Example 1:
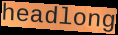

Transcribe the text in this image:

headlong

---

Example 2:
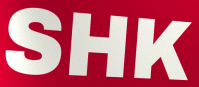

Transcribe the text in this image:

SHK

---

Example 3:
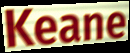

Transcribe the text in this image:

Keane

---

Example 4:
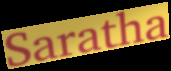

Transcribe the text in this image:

Saratha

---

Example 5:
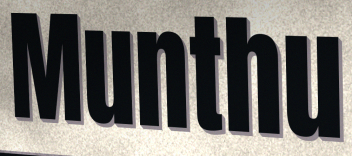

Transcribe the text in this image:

Munthu